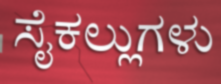
ಸೈಕಲ್ಲುಗಳು